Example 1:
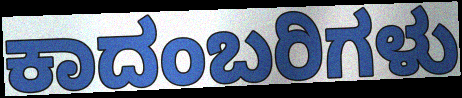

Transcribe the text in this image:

ಕಾದಂಬರಿಗಳು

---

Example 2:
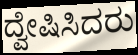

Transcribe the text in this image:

ದ್ವೇಷಿಸಿದರು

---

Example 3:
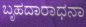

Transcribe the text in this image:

ಬೃಹದಾರಾಧನಾ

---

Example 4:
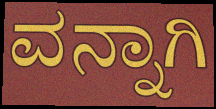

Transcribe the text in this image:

ವನ್ನಾಗಿ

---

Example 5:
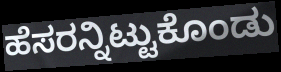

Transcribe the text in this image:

ಹೆಸರನ್ನಿಟ್ಟುಕೊಂಡು